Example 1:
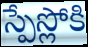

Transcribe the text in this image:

స్పేస్లోకి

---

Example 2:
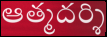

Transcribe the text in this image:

ఆత్మదర్శి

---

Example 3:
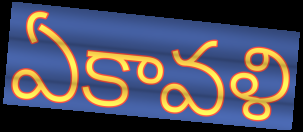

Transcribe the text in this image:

ఏకావళి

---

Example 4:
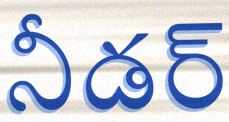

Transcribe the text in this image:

నీడర్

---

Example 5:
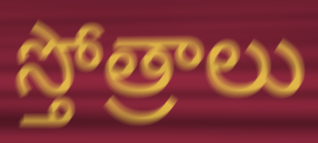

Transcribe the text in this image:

స్తోత్రాలు